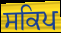
ਸਕਿਪ